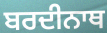
ਬਰਦੀਨਾਥ